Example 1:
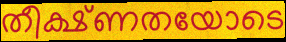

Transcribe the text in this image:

തീക്ഷ്ണതയോടെ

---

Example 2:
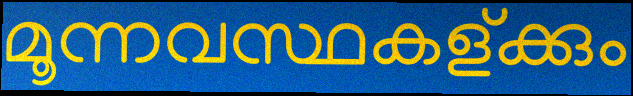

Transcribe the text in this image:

മൂന്നവസ്ഥകള്ക്കും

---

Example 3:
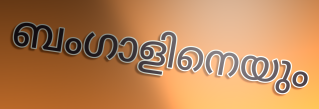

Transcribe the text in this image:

ബംഗാളിനെയും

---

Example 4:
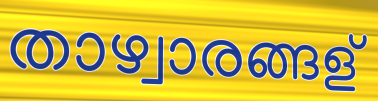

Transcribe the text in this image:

താഴ്വാരങ്ങള്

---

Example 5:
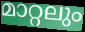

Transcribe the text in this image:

മാറ്റലും